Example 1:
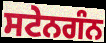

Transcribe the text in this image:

ਸਟੇਨਗੰਨ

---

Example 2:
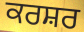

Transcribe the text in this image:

ਕਰਸ਼ਰ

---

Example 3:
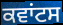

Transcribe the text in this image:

ਕਵਾਂਟਸ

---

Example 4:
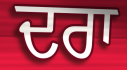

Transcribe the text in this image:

ਦਰਾ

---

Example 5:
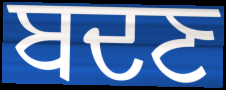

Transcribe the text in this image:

ਬਦਣ